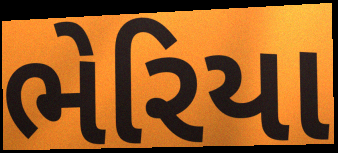
ભેરિયા